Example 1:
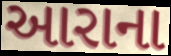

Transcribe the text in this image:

આરાના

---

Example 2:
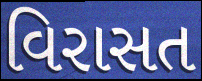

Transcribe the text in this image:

વિરાસત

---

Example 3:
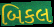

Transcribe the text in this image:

બિકલ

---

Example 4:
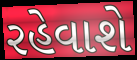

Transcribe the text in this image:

રહેવાશે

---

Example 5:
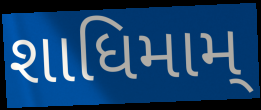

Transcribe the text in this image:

શાધિમામ્